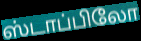
ஸ்டாப்பிலோ